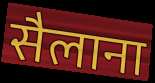
सैलाना